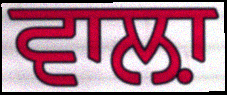
ਵਾਲ਼ਾ